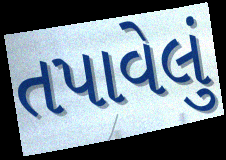
તપાવેલું